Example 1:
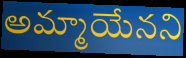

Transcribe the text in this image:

అమ్మాయేనని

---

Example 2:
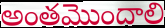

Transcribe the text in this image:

అంతమొందాలి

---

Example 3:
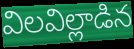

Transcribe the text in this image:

విలవిల్లాడిన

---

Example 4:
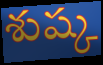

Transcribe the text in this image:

శుష్క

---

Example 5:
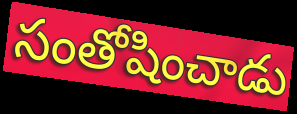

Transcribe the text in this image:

సంతోషించాడు